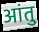
आंतु